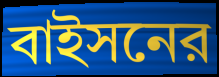
বাইসনের